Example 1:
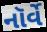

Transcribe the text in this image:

નૉર્વે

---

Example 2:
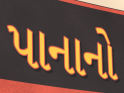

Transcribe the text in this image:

પાનાનો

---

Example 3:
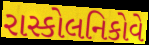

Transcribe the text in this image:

રાસ્કોલનિકોવે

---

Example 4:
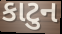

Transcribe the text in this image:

કાટુન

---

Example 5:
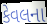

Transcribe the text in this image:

કેવલના